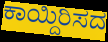
ಕಾಯ್ದಿರಿಸದ